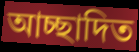
আচ্ছাদিত